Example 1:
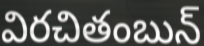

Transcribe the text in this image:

విరచితంబున్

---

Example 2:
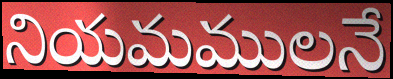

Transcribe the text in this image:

నియమములనే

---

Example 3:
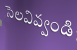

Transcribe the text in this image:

సెలవివ్వండి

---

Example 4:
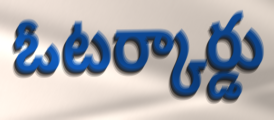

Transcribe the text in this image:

ఓటర్కార్డు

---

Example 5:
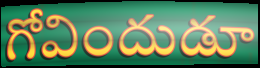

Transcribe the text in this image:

గోవిందుడూ